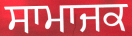
ਸਾਮਾਜਕ